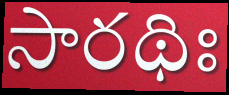
సారథిః